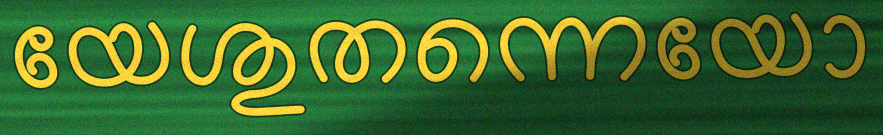
യേശുതന്നെയോ